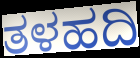
ತಳಹದಿ